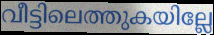
വീട്ടിലെത്തുകയില്ലേ